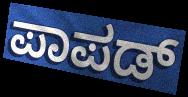
ಪಾಪಡ್